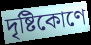
দৃষ্টিকোণে